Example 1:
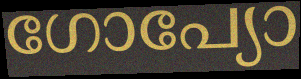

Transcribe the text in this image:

ഗോപ്യോ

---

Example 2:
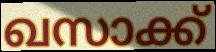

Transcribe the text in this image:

ഖസാക്ക്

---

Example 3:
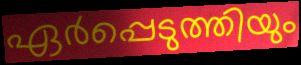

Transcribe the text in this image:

ഏർപ്പെടുത്തിയും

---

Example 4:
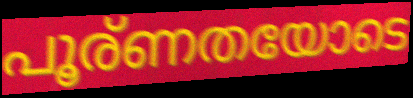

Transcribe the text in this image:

പൂര്ണതയോടെ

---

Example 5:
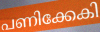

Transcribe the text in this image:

പണിക്കേകി